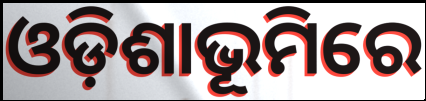
ଓଡ଼ିଶାଭୂମିରେ